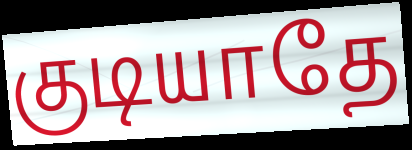
குடியாதே